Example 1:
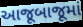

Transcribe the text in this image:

આજૂબાજૂમાં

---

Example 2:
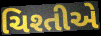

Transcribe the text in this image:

ચિશ્તીએ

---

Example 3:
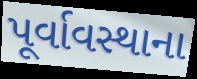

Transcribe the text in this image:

પૂર્વાવસ્થાના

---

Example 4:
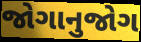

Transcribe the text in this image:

જોગાનુજોગ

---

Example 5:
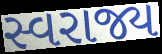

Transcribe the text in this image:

સ્વરાજ્ય